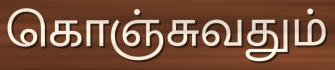
கொஞ்சுவதும்